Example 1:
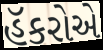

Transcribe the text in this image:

હૅકરોએ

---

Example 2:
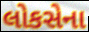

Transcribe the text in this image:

લોકસેના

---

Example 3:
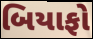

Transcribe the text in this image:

બિયાફો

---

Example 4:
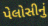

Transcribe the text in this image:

પેલોસીનું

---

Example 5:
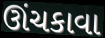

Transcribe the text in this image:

ઊંચકાવા